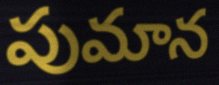
పుమాన